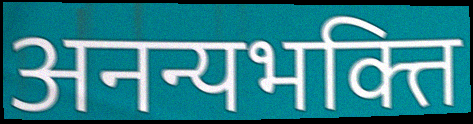
अनन्यभक्ति